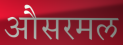
औसरमल